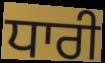
ਧਾਰੀ